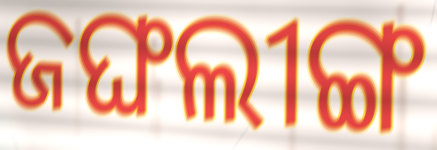
ଜଙ୍ଘଲୀଙ୍ଗ